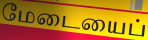
மேடையைப்